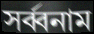
সৰ্ব্বনাম